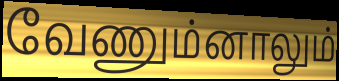
வேணும்னாலும்